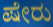
ಷೇರು